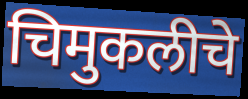
चिमुकलीचे